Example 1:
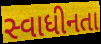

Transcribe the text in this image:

સ્વાધીનતા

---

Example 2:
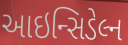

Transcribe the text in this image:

આઇન્સિડેલ્ન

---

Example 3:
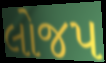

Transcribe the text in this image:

લોજપ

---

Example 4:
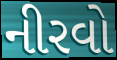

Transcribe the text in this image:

નીરવો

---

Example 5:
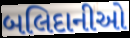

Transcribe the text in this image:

બલિદાનીઓ